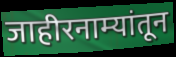
जाहीरनाम्यांतून